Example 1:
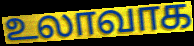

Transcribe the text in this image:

உலாவாக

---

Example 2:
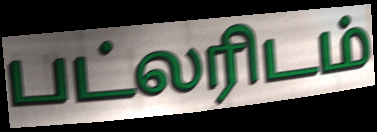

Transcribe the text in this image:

பட்லரிடம்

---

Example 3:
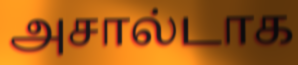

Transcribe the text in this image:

அசால்டாக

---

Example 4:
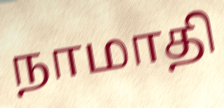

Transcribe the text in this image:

நாமாதி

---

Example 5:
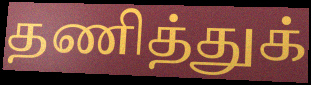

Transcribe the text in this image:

தணித்துக்